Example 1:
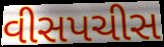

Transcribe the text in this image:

વીસપચીસ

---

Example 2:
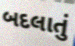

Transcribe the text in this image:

બદલાતું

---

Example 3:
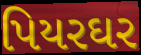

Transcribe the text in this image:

પિયરઘર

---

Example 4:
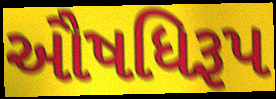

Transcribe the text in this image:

ઔષધિરૂપ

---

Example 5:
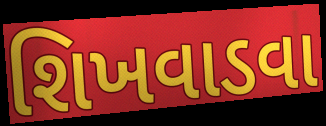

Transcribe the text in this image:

શિખવાડવા